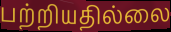
பற்றியதில்லை